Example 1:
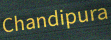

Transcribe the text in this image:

Chandipura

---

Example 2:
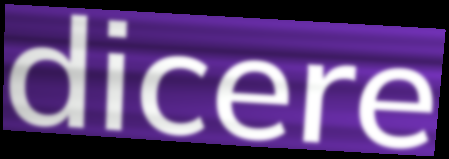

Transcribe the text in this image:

dicere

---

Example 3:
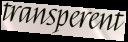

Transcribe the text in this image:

transperent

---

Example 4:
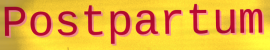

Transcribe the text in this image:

Postpartum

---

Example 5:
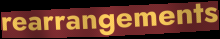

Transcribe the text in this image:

rearrangements